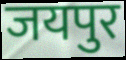
जयपुर